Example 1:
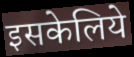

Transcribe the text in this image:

इसकेलिये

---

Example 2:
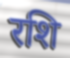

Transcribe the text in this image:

रशि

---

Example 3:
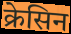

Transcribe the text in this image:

क्रेसिन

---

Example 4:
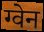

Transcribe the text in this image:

ग्वेन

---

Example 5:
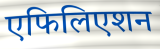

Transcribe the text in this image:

एफिलिएशन